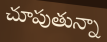
చూపుతున్నా